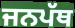
ਜਨਪੱਥ